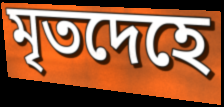
মৃতদেহে